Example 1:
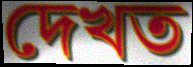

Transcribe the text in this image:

দেখত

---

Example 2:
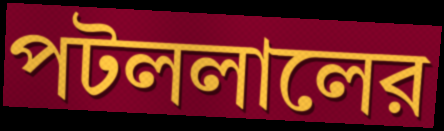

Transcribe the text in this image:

পটললালের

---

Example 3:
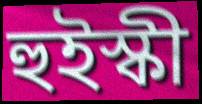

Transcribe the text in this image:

হুইস্কী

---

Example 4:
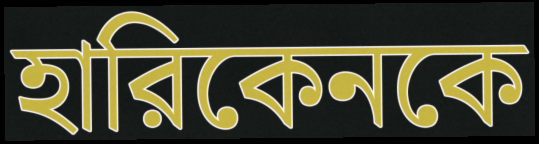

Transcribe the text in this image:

হারিকেনকে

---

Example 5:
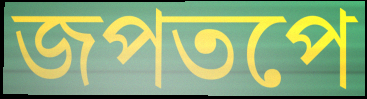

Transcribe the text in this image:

জপতপে